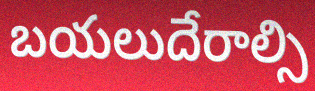
బయలుదేరాల్సి